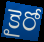
కైరో